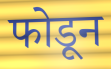
फोडून